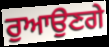
ਰੁਆਉਣਗੇ